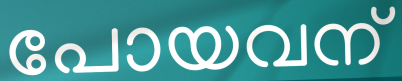
പോയവന്